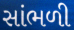
સાંભળી